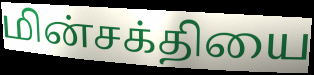
மின்சக்தியை